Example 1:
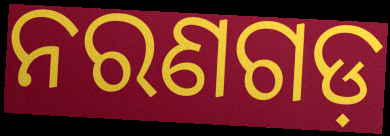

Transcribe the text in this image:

ନରଣଗଡ଼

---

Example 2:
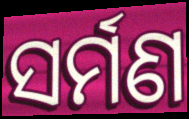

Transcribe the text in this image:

ସର୍ମଣ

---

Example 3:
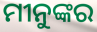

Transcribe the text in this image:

ମୀନୁଙ୍କର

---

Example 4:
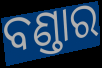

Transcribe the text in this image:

ବଣ୍ଡାର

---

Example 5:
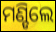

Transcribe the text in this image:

ମଣ୍ଡିଲେ